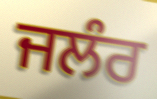
ਜਲੰਰ